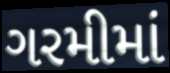
ગરમીમાં